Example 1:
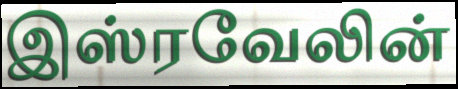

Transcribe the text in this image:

இஸ்ரவேலின்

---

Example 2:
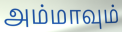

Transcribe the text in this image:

அம்மாவும்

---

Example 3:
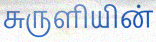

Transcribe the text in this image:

சுருளியின்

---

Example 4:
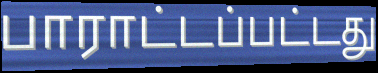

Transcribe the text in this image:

பாராட்டப்பட்டது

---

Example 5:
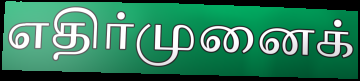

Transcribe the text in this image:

எதிர்முனைக்